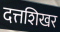
दत्तशिखर